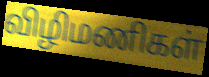
விழிமணிகள்